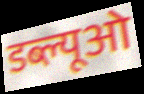
डब्ल्यूओ